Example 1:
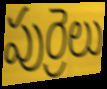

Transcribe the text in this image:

పుర్రెలు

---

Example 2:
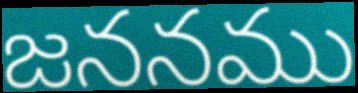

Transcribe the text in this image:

జననము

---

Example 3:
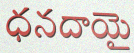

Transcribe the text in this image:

ధనదాయై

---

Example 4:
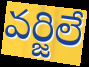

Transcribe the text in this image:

వర్జిలే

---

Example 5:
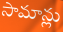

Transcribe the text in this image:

సామాన్లు